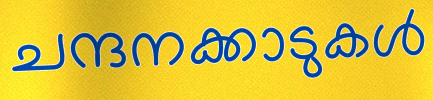
ചന്ദനക്കാടുകൾ